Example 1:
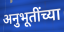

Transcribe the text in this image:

अनुभूतींच्या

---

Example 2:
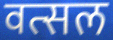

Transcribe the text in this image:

वत्सल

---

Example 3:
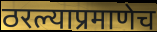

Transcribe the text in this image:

ठरल्याप्रमाणेच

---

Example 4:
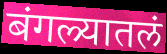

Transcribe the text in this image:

बंगल्यातलं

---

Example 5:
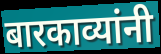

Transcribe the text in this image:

बारकाव्यांनी